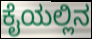
ಕೈಯಲ್ಲಿನ